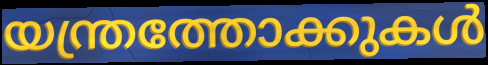
യന്ത്രത്തോക്കുകൾ